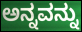
ಅನ್ನವನ್ನು